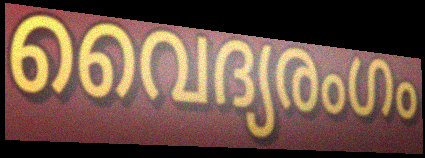
വൈദ്യരംഗം